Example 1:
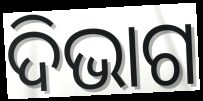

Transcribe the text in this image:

ଦିଭାଗ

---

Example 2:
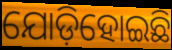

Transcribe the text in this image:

ଯୋଡ଼ିହୋଇଛି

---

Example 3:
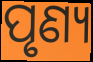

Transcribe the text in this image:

ପୃଣ୍ୟ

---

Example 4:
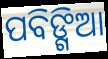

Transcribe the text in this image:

ପବିଙ୍ଗିଆ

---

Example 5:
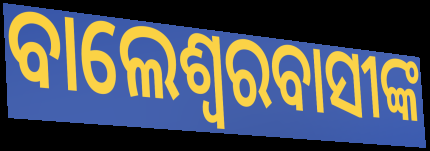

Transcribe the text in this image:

ବାଲେଶ୍ବରବାସୀଙ୍କ